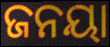
ଜନୟା